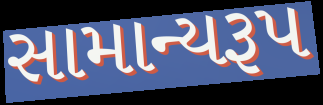
સામાન્યરૂપ